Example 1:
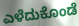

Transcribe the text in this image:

ಎಳೆದುಕೊಂಡೆ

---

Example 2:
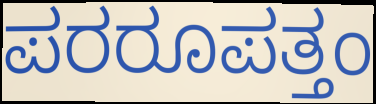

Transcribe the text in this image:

ಪರರೂಪತ್ತಂ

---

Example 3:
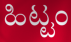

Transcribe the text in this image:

ಹಿಟ್ಟಂ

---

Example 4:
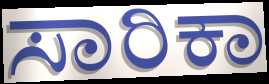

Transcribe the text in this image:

ಸಾರಿಕಾ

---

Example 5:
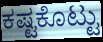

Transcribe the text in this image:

ಕಷ್ಟಕೊಟ್ಟು